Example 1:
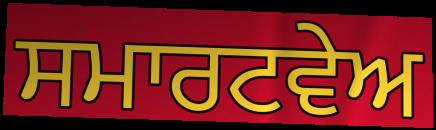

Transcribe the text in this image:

ਸਮਾਰਟਵੇਅ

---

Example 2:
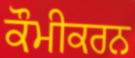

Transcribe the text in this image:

ਕੌਮੀਕਰਨ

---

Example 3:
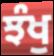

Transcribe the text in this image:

ਝੰਖੁ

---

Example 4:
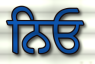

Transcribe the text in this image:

ਨਿਓ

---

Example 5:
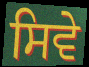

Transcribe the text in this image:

ਸਿਵੇ